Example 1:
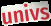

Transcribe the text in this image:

univs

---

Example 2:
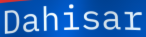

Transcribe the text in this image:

Dahisar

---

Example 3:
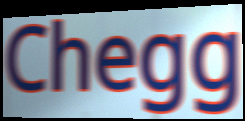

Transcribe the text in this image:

Chegg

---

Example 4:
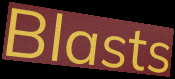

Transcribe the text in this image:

Blasts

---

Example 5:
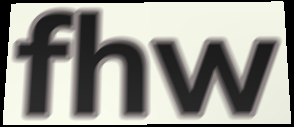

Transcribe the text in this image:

fhw